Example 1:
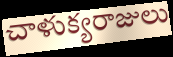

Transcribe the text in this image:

చాళుక్యరాజులు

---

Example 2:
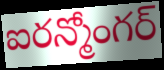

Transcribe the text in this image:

ఐరన్మోంగర్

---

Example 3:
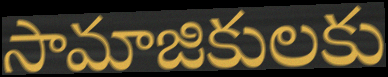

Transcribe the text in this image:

సామాజికులకు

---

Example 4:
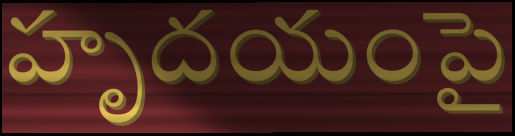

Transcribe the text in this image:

హృదయంపై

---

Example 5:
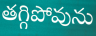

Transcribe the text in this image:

తగ్గిపోవును